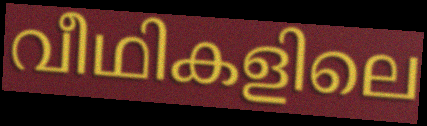
വീഥികളിലെ